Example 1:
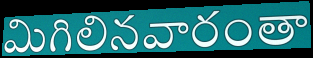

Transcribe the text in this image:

మిగిలినవారంతా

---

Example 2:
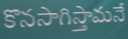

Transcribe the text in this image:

కొనసాగిస్తామనే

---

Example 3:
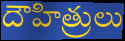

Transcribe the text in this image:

దౌహిత్రులు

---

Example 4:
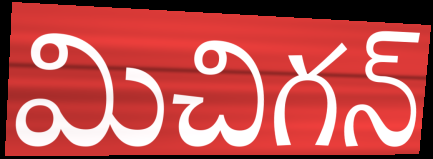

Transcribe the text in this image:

మిచిగన్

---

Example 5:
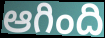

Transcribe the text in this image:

ఆగింది